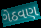
ગેઠવણ